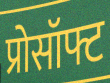
प्रोसॉफ्ट